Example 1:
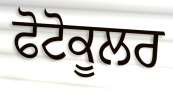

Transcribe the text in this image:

ਫੋਟੋਕੂਲਰ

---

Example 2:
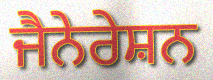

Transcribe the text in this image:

ਜੈਨੇਰੇਸ਼ਨ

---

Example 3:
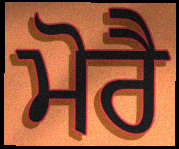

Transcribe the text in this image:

ਮੋਰੈ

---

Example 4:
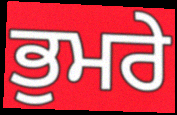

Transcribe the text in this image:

ਭੁਮਰੇ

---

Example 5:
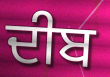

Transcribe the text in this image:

ਦੀਬ